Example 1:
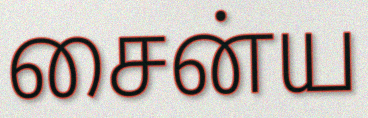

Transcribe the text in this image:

சைன்ய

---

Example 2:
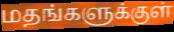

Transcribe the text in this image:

மதங்களுக்குள்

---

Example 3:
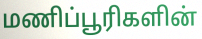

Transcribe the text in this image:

மணிப்பூரிகளின்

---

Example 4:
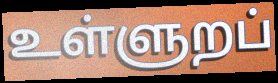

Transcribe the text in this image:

உள்ளுறப்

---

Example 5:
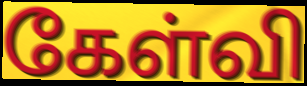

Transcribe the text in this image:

கேள்வி